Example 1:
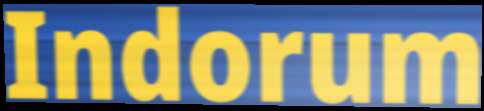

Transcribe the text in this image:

Indorum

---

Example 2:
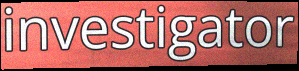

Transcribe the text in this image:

investigator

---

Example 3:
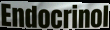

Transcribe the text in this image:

Endocrinol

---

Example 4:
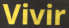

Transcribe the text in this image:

Vivir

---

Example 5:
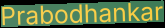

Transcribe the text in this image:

Prabodhankar